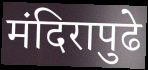
मंदिरापुढे